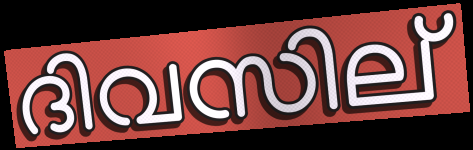
ദിവസില്